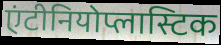
एंटीनियोप्लास्टिक